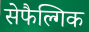
सेफैल्गिक